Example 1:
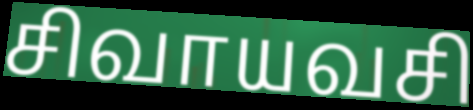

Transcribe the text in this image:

சிவாயவசி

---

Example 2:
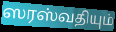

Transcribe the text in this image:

ஸரஸ்வதியும்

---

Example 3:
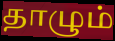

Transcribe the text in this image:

தாழும்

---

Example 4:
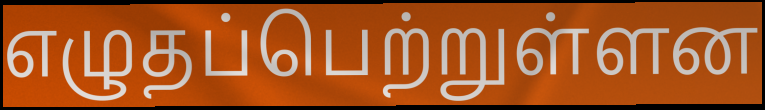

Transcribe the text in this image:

எழுதப்பெற்றுள்ளன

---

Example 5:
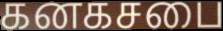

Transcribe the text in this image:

கனகசபை